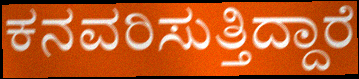
ಕನವರಿಸುತ್ತಿದ್ದಾರೆ